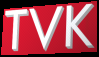
TVK